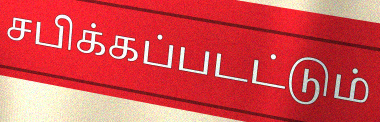
சபிக்கப்படட்டும்